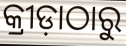
କ୍ରୀଡ଼ାଠାରୁ